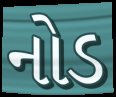
નોડ